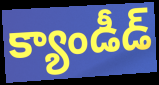
క్యాండీడ్